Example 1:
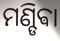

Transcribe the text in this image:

ମଣ୍ଡିଵା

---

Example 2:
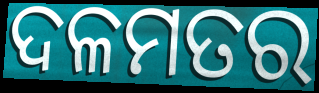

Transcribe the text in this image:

ଦଳମତର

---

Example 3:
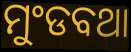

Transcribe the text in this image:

ମୁଂଡବଥା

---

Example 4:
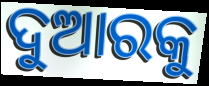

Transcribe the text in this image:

ଦୁଆରକୁ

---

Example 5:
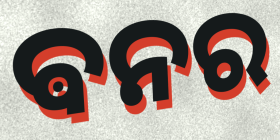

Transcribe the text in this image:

ଵନର